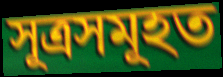
সূত্ৰসমূহত